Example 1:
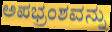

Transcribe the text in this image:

ಅಪಭ್ರಂಶವನ್ನು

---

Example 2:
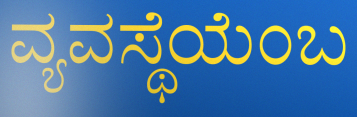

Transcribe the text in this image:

ವ್ಯವಸ್ಥೆಯೆಂಬ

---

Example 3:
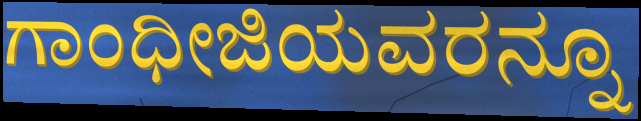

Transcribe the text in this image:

ಗಾಂಧೀಜಿಯವರನ್ನೂ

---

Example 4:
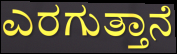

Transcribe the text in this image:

ಎರಗುತ್ತಾನೆ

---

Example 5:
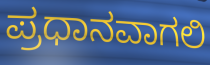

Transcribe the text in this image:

ಪ್ರಧಾನವಾಗಲಿ